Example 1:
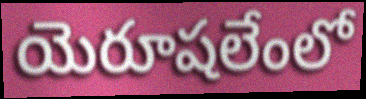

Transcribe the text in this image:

యెరూషలేంలో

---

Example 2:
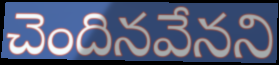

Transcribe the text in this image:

చెందినవేనని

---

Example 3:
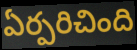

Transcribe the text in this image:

ఏర్పరిచింది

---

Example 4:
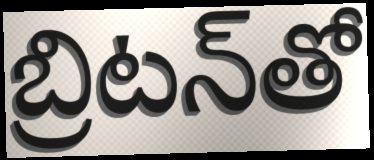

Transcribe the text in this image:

బ్రిటన్‌తో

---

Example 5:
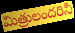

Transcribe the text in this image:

మిత్రులందరినీ